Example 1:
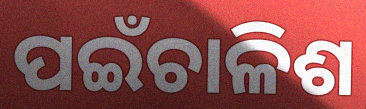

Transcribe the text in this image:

ପଇଁଚାଳିଶ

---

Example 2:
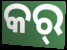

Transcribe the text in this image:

କର୍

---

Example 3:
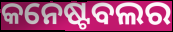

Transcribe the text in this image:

କନେଷ୍ଟବଲର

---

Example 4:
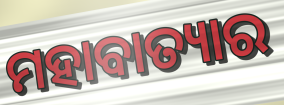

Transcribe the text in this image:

ମହାବାତ୍ୟାର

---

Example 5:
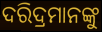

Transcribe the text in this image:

ଦରିଦ୍ରମାନଙ୍କୁ